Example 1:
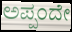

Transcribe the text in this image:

ಅಪ್ಪಂದೇ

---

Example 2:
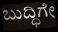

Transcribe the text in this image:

ಬುದ್ಧಿಗೇ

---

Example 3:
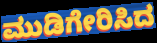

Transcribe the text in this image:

ಮುಡಿಗೇರಿಸಿದ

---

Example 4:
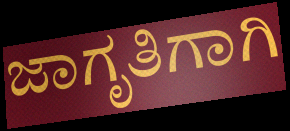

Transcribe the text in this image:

ಜಾಗೃತಿಗಾಗಿ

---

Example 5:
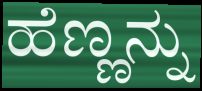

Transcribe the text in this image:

ಹೆಣ್ಣನ್ನು